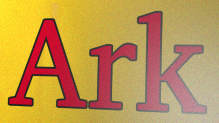
Ark